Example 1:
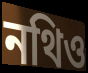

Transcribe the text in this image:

নথিও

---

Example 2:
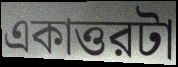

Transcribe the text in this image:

একাত্তরটা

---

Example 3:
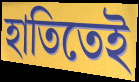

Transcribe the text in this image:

হাতিতেই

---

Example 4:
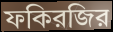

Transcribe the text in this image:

ফকিরজির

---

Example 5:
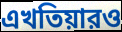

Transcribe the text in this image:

এখতিয়ারও